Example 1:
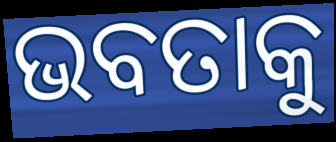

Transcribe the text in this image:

ଭବତାକୁ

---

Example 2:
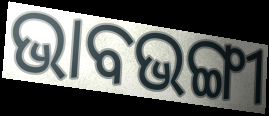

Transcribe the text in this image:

ଭାବଭଙ୍ଗୀ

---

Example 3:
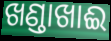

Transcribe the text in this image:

ଖଣ୍ଡାଖାଈ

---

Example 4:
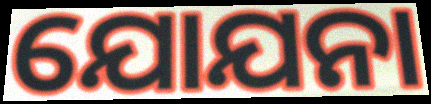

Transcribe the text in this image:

ଯୋଯନା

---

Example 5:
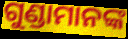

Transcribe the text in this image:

ଗୁଣ୍ଡାମାନଙ୍କ